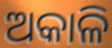
ଅକାଳି